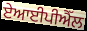
ਏਆਈਪੀਐੱਲ